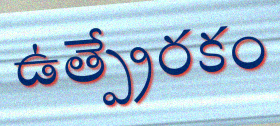
ఉత్ప్రేరకం